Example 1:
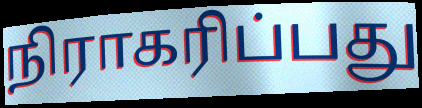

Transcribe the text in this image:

நிராகரிப்பது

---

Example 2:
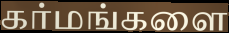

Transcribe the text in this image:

கர்மங்களை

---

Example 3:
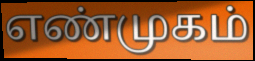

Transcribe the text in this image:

எண்முகம்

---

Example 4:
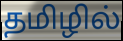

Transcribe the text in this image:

தமிழில்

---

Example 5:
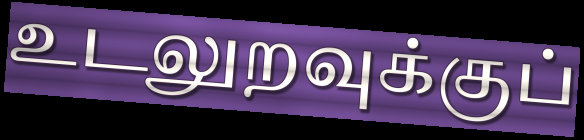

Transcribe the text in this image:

உடலுறவுக்குப்